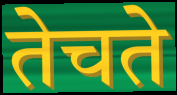
तेचते